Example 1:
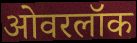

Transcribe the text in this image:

ओवरलॉक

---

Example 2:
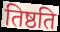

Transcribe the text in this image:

तिष्ठति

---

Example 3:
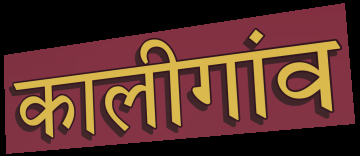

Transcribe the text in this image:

कालीगांव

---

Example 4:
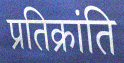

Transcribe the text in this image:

प्रतिक्रांति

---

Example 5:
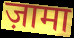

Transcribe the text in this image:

ज़ामा